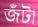
জঁটা